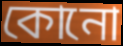
কোনো